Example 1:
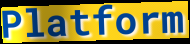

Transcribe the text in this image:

Platform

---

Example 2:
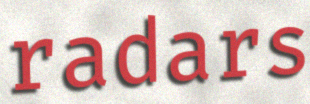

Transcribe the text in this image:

radars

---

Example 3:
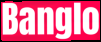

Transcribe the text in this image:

Banglo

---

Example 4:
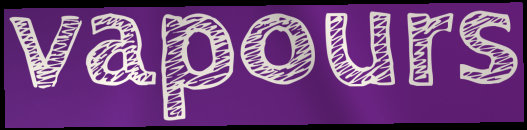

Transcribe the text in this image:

vapours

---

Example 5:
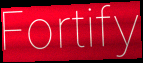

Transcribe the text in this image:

Fortify